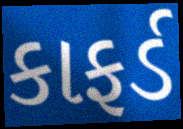
કાફર્ડ